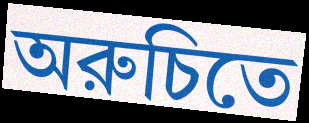
অরুচিতে